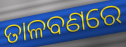
ତାଳବଣରେ